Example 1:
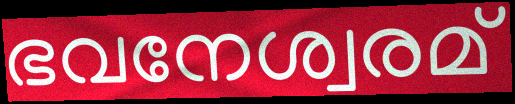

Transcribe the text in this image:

ഭവനേശ്വരമ്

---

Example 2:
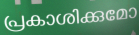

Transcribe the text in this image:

പ്രകാശിക്കുമോ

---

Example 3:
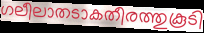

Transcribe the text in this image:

ഗലീലാതടാകതീരത്തുകൂടി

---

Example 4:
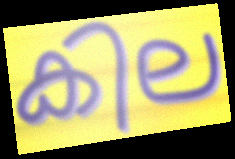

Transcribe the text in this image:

കില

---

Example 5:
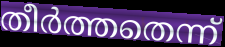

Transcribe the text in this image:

തീർത്തതെന്ന്